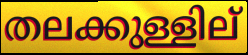
തലക്കുള്ളില്